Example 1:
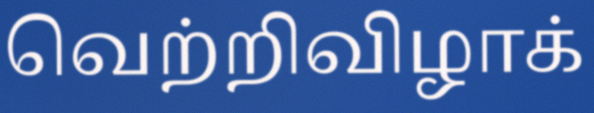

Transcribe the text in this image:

வெற்றிவிழாக்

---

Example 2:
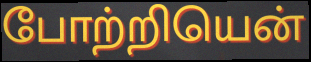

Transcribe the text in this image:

போற்றியென்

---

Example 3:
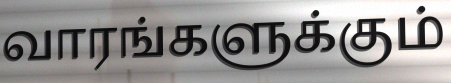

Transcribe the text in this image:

வாரங்களுக்கும்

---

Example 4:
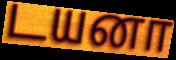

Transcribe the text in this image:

டயனா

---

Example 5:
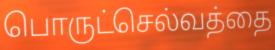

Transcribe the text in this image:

பொருட்செல்வத்தை